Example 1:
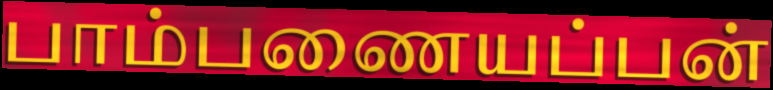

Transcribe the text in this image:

பாம்பணையப்பன்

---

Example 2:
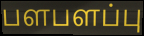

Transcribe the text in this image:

பளபளப்பு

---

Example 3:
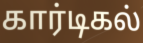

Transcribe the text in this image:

கார்டிகல்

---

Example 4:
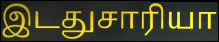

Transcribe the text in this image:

இடதுசாரியா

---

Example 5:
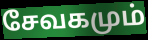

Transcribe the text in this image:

சேவகமும்